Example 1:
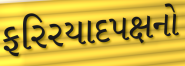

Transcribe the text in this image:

ફરિરયાદપક્ષનો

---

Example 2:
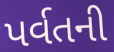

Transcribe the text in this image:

પર્વતની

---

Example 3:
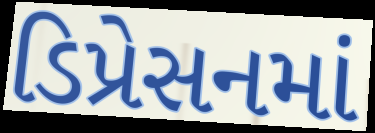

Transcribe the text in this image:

ડિપ્રેસનમાં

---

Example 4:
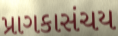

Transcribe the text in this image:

પ્રાગકાસંચય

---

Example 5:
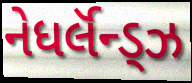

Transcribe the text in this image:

નેધર્લૅન્ડ્ઝ